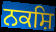
ਨਕਸ਼ਿ